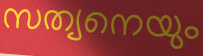
സത്യനെയും